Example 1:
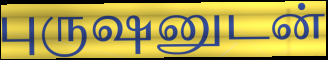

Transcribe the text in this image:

புருஷனுடன்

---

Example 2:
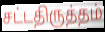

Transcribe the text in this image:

சட்டதிருத்தம்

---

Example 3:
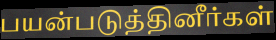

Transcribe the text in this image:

பயன்படுத்தினீர்கள்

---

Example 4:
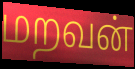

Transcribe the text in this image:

மறவன்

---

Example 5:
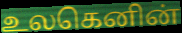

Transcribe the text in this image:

உலகெனின்